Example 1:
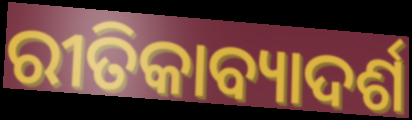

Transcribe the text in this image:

ରୀତିକାବ୍ୟାଦର୍ଶ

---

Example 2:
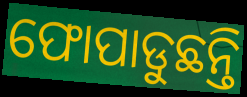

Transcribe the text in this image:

ଫୋପାଡୁଛନ୍ତି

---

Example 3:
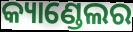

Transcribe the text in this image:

କ୍ୟାଣ୍ଡେଲର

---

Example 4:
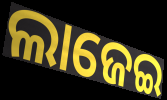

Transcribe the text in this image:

ଲାଜେଇ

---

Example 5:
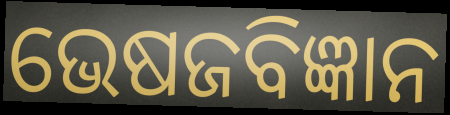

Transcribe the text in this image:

ଭେଷଜବିଜ୍ଞାନ